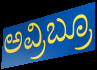
ಅವ್ರಿಬ್ರೂ